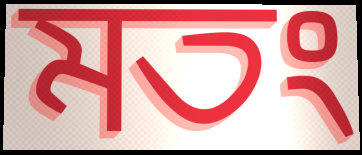
মতং